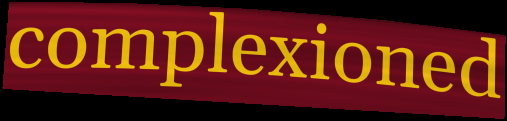
complexioned